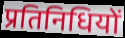
प्रतिनिधियों